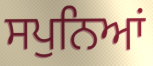
ਸਪੁਨਿਆਂ